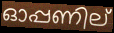
ഓപ്പണില്